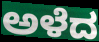
ಅಳೆದ